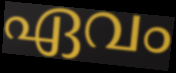
ഏവം